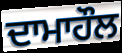
ਦਾਮਾਹੌਲ